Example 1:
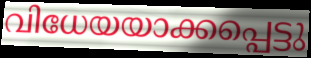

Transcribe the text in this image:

വിധേയയാക്കപ്പെട്ടു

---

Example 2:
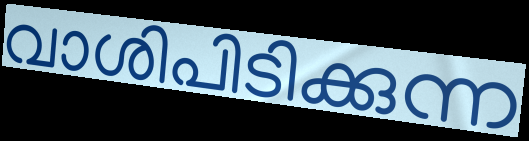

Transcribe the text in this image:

വാശിപിടിക്കുന്ന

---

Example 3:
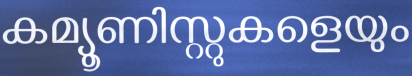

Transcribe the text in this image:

കമ്യൂണിസ്റ്റുകളെയും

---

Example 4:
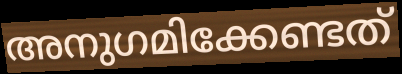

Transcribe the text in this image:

അനുഗമിക്കേണ്ടത്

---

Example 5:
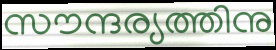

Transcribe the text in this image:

സൗന്ദര്യത്തിനു